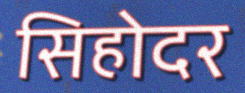
सिहोदर